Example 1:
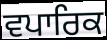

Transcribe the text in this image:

ਵਪਾਰਿਕ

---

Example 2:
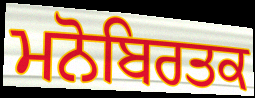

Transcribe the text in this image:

ਮਨੋਬਿਰਤਕ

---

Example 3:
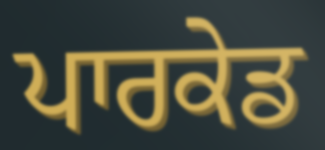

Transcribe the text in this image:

ਪਾਰਕੇਡ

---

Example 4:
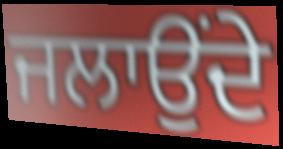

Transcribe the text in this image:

ਜਲਾਉਂਦੇ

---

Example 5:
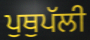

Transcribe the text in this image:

ਪੁਥੁਪੱਲੀ